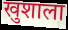
खुशाला